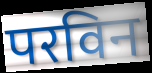
परविन